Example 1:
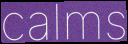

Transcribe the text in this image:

calms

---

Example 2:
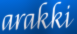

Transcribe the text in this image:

arakki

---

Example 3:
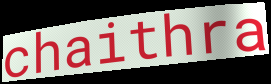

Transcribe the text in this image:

chaithra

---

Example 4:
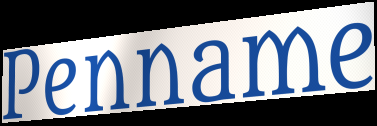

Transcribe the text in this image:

Penname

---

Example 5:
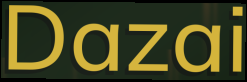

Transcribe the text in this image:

Dazai